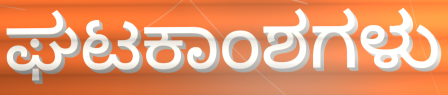
ಘಟಕಾಂಶಗಳು